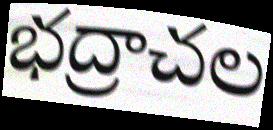
భద్రాచల